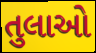
તુલાઓ